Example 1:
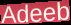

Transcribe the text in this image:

Adeeb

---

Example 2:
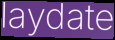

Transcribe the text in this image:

laydate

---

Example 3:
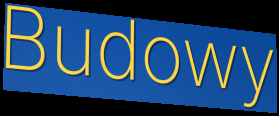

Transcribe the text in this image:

Budowy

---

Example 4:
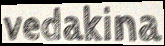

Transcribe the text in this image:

vedakina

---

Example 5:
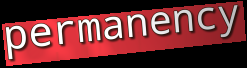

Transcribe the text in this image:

permanency